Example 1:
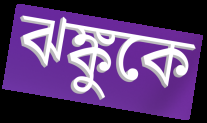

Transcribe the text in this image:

ঝঙ্কুকে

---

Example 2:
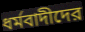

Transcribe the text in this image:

ধর্মবাদীদের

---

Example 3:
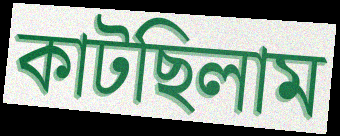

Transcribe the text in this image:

কাটছিলাম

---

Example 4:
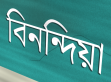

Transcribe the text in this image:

বিনন্দিয়া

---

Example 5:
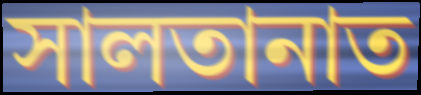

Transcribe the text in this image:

সালতানাত